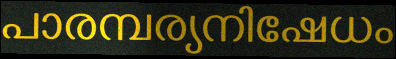
പാരമ്പര്യനിഷേധം